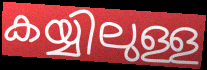
കയ്യിലുള്ള